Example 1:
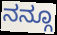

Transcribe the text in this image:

ನನ್ಗೂ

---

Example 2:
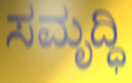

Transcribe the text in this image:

ಸಮೃದ್ಧಿ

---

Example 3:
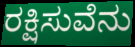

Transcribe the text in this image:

ರಕ್ಷಿಸುವೆನು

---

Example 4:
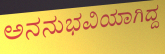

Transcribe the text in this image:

ಅನನುಭವಿಯಾಗಿದ್ದ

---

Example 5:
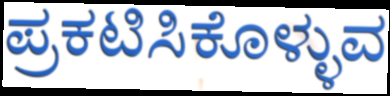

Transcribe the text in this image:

ಪ್ರಕಟಿಸಿಕೊಳ್ಳುವ